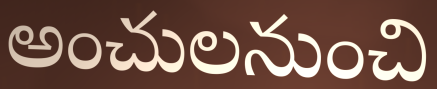
అంచులనుంచి